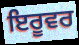
ਇਰੂਵਰ